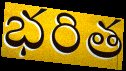
భరిత